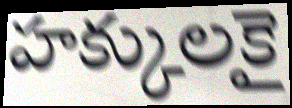
హక్కులకై